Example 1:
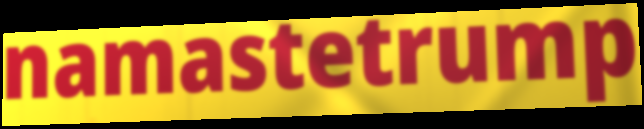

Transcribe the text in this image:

namastetrump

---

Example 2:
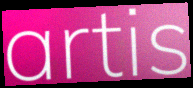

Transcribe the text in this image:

artis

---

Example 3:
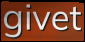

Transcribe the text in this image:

givet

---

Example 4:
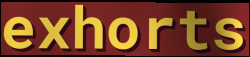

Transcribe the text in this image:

exhorts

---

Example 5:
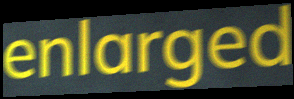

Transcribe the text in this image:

enlarged